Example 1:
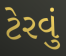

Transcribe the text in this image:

ટેરવું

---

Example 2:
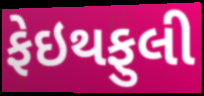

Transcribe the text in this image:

ફેઇથફુલી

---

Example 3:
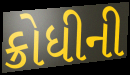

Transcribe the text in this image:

ક્રોધીની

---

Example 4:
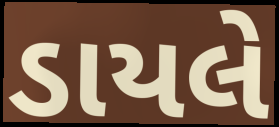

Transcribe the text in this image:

ડાયલે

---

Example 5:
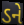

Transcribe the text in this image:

ડને